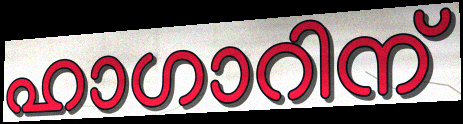
ഹാഗാറിന്